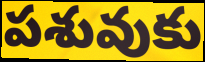
పశువుకు